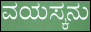
ವಯಸ್ಕನು